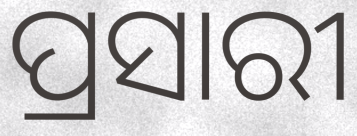
ପ୍ରସାରୀ